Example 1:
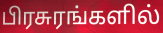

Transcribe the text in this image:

பிரசுரங்களில்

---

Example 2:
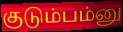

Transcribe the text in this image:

குடும்பம்னு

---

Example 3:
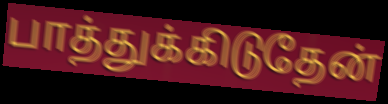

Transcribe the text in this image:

பாத்துக்கிடுதேன்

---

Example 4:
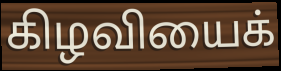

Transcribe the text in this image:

கிழவியைக்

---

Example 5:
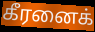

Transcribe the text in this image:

கீரனைக்